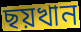
ছয়খান